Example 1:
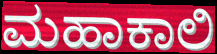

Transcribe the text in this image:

ಮಹಾಕಾಲಿ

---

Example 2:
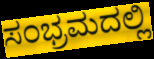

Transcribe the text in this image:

ಸಂಭ್ರಮದಲ್ಲಿ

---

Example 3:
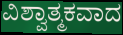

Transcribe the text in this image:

ವಿಶ್ವಾತ್ಮಕವಾದ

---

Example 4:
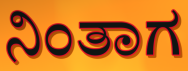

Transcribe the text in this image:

ನಿಂತಾಗ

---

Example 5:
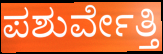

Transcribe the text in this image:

ಪಶುರ್ವೇತ್ತಿ